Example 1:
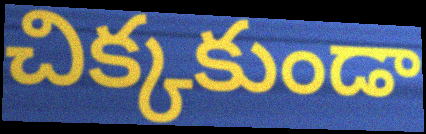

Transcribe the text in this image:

చిక్కకుండా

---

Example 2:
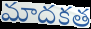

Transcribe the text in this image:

మాదకత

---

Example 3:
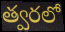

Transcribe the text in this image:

త్వరలో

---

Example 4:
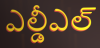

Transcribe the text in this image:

ఎల్డీఎల్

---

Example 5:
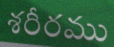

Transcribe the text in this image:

శరీరము